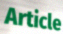
Article